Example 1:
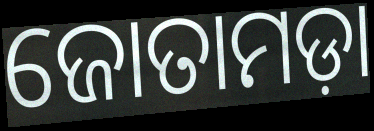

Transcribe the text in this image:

ଜୋତାମଡ଼ା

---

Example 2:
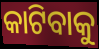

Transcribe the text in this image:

କାଟିବାକୁ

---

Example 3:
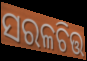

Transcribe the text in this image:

ସରଳଚିତ୍ତ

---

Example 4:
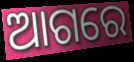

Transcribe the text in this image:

ଆଗରେ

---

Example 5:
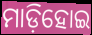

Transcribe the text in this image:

ମାଡ଼ିହୋଇ